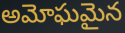
అమోఘమైన